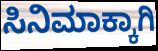
ಸಿನಿಮಾಕ್ಕಾಗಿ